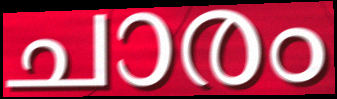
ചാരം